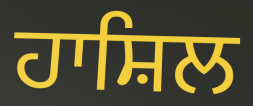
ਹਾਸ਼ਿਲ